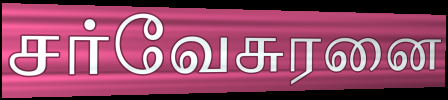
சர்வேசுரனை